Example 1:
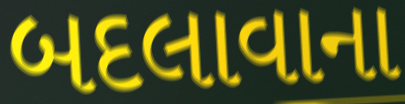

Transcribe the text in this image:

બદલાવાના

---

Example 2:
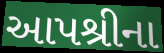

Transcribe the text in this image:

આપશ્રીના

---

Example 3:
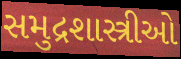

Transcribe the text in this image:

સમુદ્રશાસ્ત્રીઓ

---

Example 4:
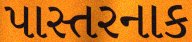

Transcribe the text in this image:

પાસ્તરનાક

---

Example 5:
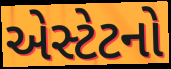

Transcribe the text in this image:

એસ્ટેટનો